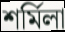
শৰ্মিলা